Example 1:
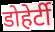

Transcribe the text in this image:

डोहेर्टी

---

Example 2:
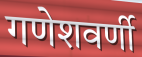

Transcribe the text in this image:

गणेशवर्णी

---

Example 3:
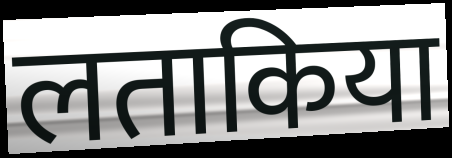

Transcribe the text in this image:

लताकिया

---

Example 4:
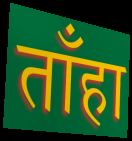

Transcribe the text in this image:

ताँहा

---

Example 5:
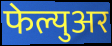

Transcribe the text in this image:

फेल्युअर